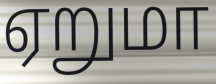
ஏறுமா